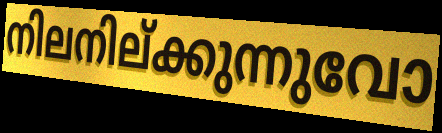
നിലനില്ക്കുന്നുവോ